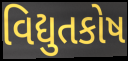
વિદ્યુતકોષ